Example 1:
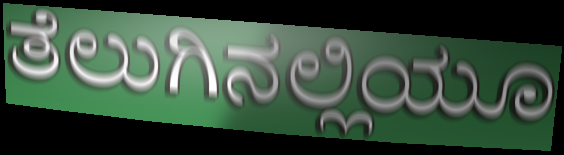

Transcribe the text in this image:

ತೆಲುಗಿನಲ್ಲಿಯೂ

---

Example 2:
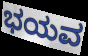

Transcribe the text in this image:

ಭಯವ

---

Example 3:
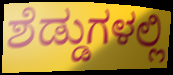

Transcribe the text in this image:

ಶೆಡ್ಡುಗಳಲ್ಲಿ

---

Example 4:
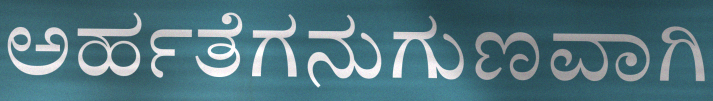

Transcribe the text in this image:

ಅರ್ಹತೆಗನುಗುಣವಾಗಿ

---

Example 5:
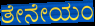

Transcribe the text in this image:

ತೇನೇಯಂ